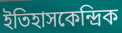
ইতিহাসকেন্দ্রিক